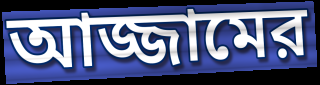
আজ্জামের